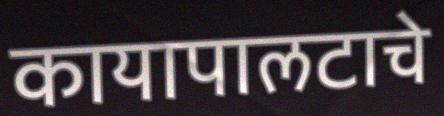
कायापालटाचे